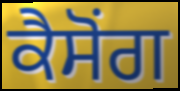
ਕੈਸੋਂਗ